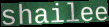
shailee